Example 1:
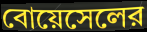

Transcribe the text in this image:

বোয়েসেলের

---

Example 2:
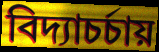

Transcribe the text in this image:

বিদ্যাচর্চায়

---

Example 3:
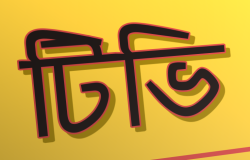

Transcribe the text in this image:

টিভি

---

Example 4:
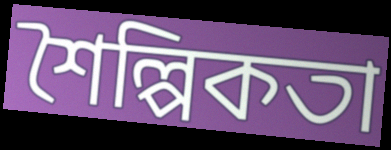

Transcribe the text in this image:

শৈল্পিকতা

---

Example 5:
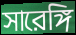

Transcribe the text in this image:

সারেঙ্গি